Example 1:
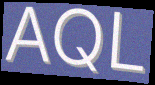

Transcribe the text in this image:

AQL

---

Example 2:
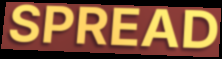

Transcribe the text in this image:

SPREAD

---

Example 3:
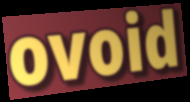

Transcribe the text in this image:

ovoid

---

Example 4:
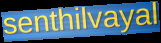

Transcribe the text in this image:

senthilvayal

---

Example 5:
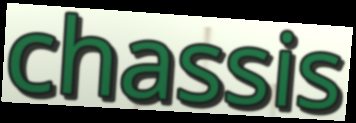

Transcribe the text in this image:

chassis